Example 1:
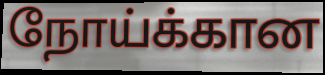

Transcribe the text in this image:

நோய்க்கான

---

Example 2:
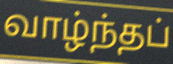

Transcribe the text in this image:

வாழ்ந்தப்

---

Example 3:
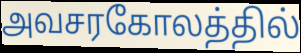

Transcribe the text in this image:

அவசரகோலத்தில்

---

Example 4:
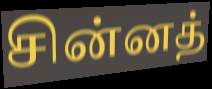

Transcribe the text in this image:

சின்னத்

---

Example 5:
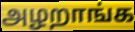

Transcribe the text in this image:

அழறாங்க